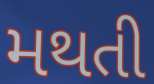
મથતી